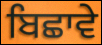
ਬਿਛਾਵੇ